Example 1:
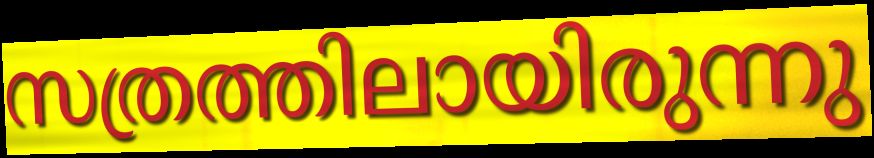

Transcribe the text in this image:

സത്രത്തിലായിരുന്നു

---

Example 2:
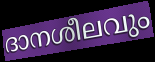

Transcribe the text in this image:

ദാനശീലവും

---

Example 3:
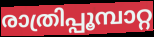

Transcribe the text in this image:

രാത്രിപ്പൂമ്പാറ്റ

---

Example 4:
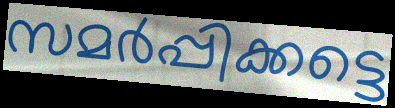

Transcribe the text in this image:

സമർപ്പിക്കട്ടെ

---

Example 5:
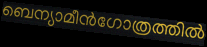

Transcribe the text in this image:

ബെന്യാമീൻഗോത്രത്തിൽ